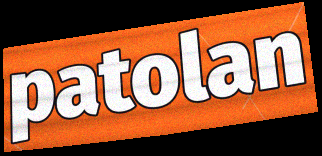
patolan